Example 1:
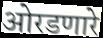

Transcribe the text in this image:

ओरडणारे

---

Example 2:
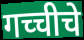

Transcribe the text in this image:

गच्चीचे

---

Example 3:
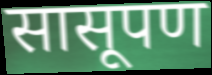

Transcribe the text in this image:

सासूपण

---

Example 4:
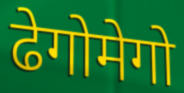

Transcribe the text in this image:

ढेगोमेगो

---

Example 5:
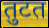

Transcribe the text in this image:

तुटत